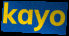
kayo